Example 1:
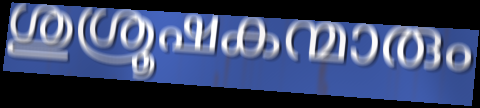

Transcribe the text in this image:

ശുശ്രൂഷകന്മാരും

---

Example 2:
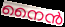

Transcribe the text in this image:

നൈൻ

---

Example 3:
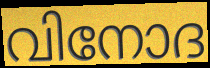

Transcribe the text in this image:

വിനോദ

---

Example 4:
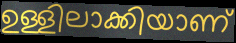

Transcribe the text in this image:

ഉള്ളിലാക്കിയാണ്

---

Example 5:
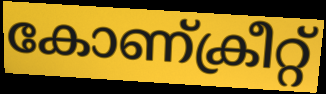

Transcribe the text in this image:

കോണ്ക്രീറ്റ്